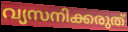
വ്യസനിക്കരുത്